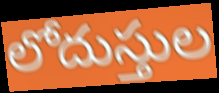
లోదుస్తుల